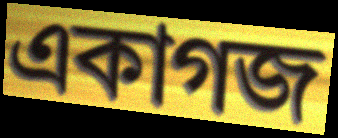
একাগজ